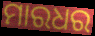
ମାରଧର